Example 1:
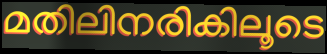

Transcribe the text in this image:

മതിലിനരികിലൂടെ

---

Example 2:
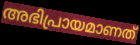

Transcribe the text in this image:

അഭിപ്രായമാണത്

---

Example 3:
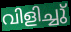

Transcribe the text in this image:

വിളിച്ചു്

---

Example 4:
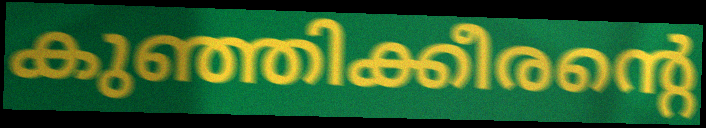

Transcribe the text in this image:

കുഞ്ഞിക്കീരന്റെ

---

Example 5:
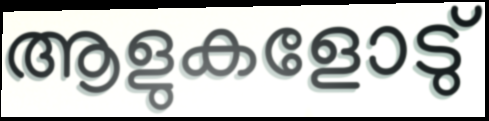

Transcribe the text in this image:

ആളുകളോടു്